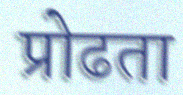
प्रोढता